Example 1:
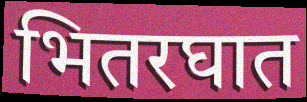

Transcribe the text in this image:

भितरघात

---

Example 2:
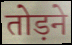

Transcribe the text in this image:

तोड़ने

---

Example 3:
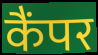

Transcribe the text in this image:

कैंपर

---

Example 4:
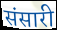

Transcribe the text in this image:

संसारी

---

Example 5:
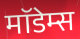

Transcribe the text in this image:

मॉडेम्स